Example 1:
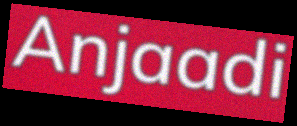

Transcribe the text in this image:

Anjaadi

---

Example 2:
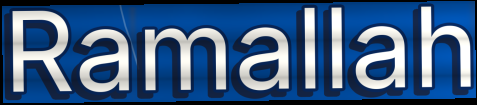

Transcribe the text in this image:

Ramallah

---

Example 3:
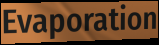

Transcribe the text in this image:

Evaporation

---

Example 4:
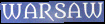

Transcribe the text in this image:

WARSAW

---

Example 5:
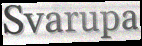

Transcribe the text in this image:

Svarupa